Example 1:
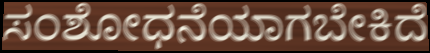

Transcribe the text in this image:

ಸಂಶೋಧನೆಯಾಗಬೇಕಿದೆ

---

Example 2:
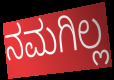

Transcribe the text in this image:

ನಮಗಿಲ್ಲ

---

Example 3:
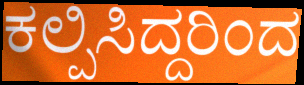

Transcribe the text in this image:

ಕಲ್ಪಿಸಿದ್ದರಿಂದ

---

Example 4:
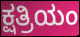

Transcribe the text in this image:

ಕ್ಷತ್ರಿಯಂ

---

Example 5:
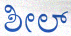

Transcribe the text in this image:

ಶೀಲ್